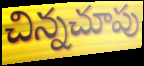
చిన్నచూపు